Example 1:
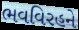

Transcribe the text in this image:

ભવવિરહને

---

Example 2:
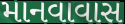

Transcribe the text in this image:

માનવાવાસ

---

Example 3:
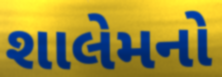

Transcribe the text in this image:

શાલેમનો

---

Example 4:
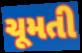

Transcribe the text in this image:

ચૂમતી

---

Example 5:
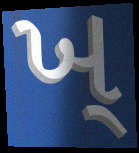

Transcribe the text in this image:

ખ્